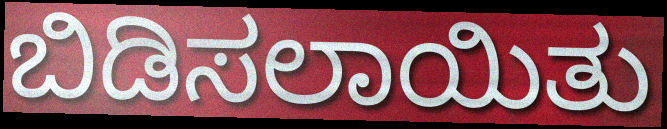
ಬಿಡಿಸಲಾಯಿತು